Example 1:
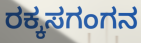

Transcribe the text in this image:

ರಕ್ಕಸಗಂಗನ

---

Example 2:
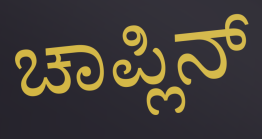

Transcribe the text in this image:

ಚಾಪ್ಲಿನ್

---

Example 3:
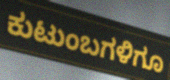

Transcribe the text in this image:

ಕುಟುಂಬಗಳಿಗೂ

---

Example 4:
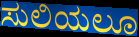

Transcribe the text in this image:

ಸುಲಿಯಲೂ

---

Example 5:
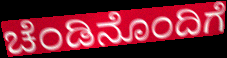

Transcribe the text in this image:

ಚೆಂಡಿನೊಂದಿಗೆ